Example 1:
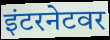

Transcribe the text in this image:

इंटरनेटवर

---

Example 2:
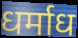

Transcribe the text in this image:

धर्माध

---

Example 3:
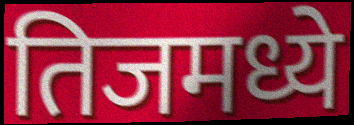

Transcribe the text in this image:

तिजमध्ये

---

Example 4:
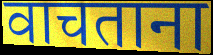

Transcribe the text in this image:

वाचताना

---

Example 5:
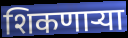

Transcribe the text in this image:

शिकणार्‍या